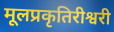
मूलप्रकृतिरीश्वरी